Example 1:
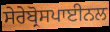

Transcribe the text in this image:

ਸੇਰੇਬ੍ਰੋਸਪਾਈਨਲ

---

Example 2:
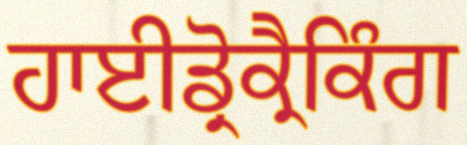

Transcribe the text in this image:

ਹਾਈਡ੍ਰੋਕ੍ਰੈਕਿੰਗ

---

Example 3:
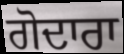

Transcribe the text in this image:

ਗੋਦਾਰਾ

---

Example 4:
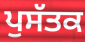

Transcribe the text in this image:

ਪੁਸੱਤਕ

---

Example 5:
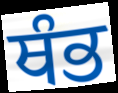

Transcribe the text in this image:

ਥੰਭ